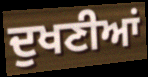
ਦੁਖਣੀਆਂ